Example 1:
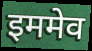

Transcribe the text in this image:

इममेव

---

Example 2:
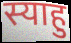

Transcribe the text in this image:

स्याहु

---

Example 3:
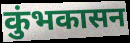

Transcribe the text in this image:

कुंभकासन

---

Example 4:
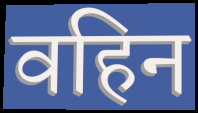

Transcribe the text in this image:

वहिन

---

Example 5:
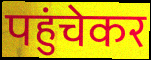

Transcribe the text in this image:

पहुंचेकर